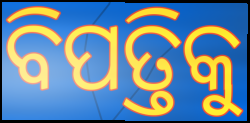
ବିପତ୍ତିକୁ